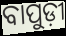
ବାପୁଡ଼ୀ